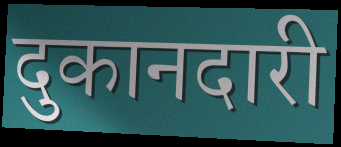
दुकानदारी